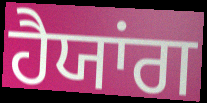
ਹੈਯਾਂਗ